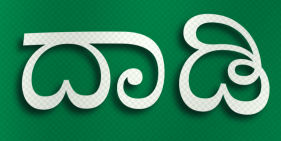
ದಾಡಿ